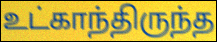
உட்காந்திருந்த